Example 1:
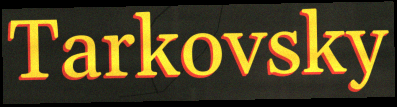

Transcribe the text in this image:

Tarkovsky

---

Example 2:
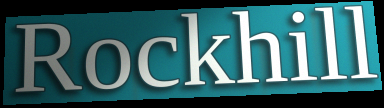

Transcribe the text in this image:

Rockhill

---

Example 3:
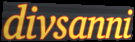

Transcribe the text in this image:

divsanni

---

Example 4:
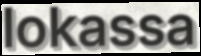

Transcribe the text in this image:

lokassa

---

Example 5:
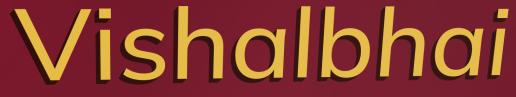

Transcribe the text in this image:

Vishalbhai